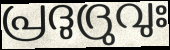
പ്രദുദ്രുവുഃ